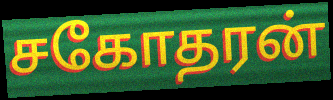
சகோதரன்